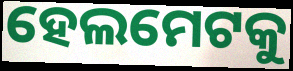
ହେଲମେଟକୁ